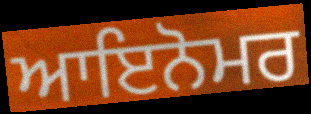
ਆਇਨੋਮਰ